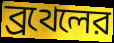
ব্রথেলের